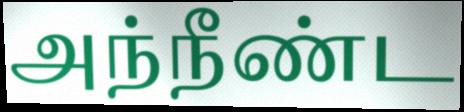
அந்நீண்ட